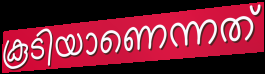
കൂടിയാണെന്നത്